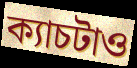
ক্যাচটাও